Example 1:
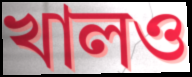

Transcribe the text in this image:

খালও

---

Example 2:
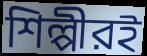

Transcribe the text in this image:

শিল্পীরই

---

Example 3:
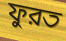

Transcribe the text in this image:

ফুরত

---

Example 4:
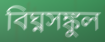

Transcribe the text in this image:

বিঘ্নসঙ্কুল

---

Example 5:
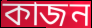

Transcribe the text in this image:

কাজন